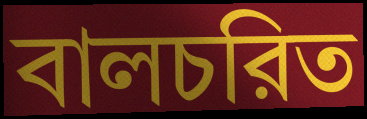
বালচরিত